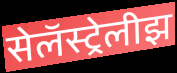
सेलॅस्ट्रेलीझ